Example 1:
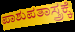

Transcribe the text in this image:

ಪಾಶುಪತಾಸ್ತ್ರಕ್ಕೆ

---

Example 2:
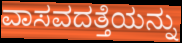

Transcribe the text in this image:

ವಾಸವದತ್ತೆಯನ್ನು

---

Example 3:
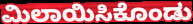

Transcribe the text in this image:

ಮಿಲಾಯಿಸಿಕೊಂಡು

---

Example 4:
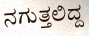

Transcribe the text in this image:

ನಗುತ್ತಲಿದ್ದ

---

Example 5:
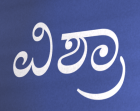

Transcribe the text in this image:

ವಿಶ್ರಾ